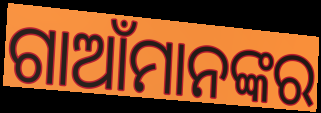
ଗାଆଁମାନଙ୍କର